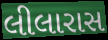
લીલારાસ